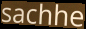
sachhe